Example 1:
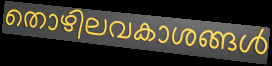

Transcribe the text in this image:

തൊഴിലവകാശങ്ങൾ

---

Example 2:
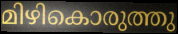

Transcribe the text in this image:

മിഴികൊരുത്തു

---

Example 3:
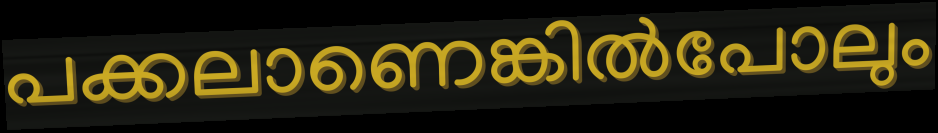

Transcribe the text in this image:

പക്കലാണെങ്കിൽപോലും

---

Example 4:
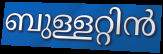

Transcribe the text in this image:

ബുള്ളറ്റിൻ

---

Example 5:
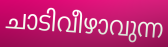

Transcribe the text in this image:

ചാടിവീഴാവുന്ന